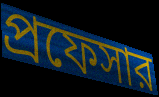
প্রফেসার